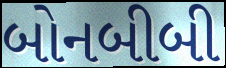
બોનબીબી